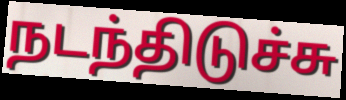
நடந்திடுச்சு